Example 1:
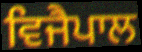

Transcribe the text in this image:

ਵਿਜੈਪਾਲ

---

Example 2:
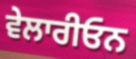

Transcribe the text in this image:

ਵੇਲਾਰੀਓਨ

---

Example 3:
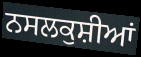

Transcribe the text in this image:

ਨਸਲਕੁਸ਼ੀਆਂ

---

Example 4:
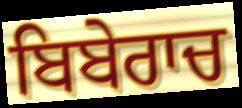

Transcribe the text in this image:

ਬਿਬੇਰਾਚ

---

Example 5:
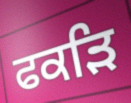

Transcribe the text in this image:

ਫਕੜਿ